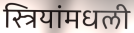
स्त्रियांमधली